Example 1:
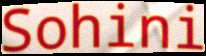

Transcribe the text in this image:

Sohini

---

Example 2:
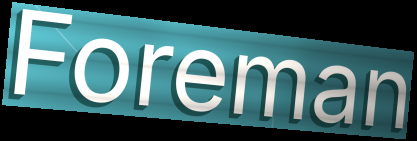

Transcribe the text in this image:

Foreman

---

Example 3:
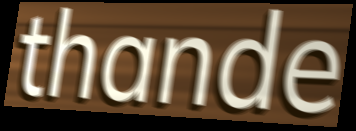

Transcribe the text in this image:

thande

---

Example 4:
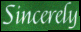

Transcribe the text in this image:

Sincerely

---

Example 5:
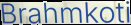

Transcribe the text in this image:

Brahmkoti